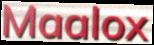
Maalox